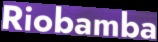
Riobamba